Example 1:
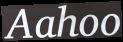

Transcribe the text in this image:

Aahoo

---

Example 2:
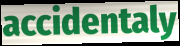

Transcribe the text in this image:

accidentaly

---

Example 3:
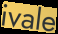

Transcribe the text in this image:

ivale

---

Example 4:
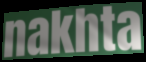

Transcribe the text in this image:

nakhta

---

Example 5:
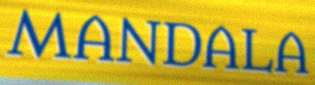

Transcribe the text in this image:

MANDALA